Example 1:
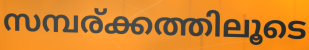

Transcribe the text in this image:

സമ്പര്ക്കത്തിലൂടെ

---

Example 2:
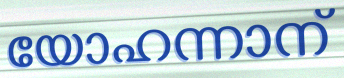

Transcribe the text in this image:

യോഹന്നാന്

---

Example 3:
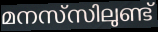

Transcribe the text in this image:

മനസ്‌സിലുണ്ട്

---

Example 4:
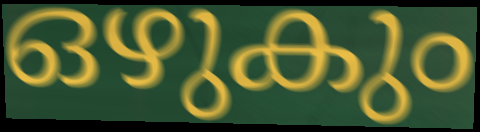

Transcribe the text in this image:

ഒഴുകും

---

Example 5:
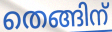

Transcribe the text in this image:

തെങ്ങിന്